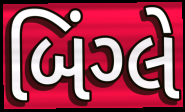
બિંગ્લે